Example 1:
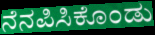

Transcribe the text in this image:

ನೆನಪಿಸಿಕೊಂಡು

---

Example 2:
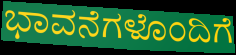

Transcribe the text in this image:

ಭಾವನೆಗಳೊಂದಿಗೆ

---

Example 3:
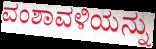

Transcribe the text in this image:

ವಂಶಾವಳಿಯನ್ನು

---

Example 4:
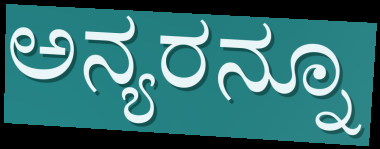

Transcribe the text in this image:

ಅನ್ಯರನ್ನೂ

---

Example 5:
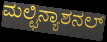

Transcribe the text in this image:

ಮಲ್ಟಿನ್ಯಾಶನಲ್